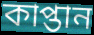
কাপ্তান